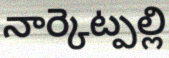
నార్కెట్పల్లి